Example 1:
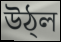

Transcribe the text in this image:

উঠ্ল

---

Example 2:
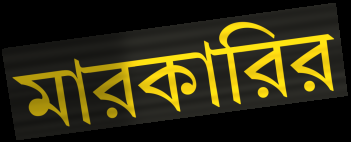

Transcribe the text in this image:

মারকারির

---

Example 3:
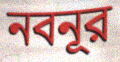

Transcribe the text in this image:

নবনূর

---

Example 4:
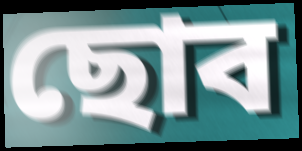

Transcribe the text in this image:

ছোব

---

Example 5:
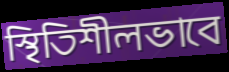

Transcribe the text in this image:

স্থিতিশীলভাবে